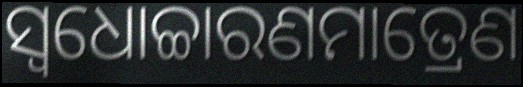
ସ୍ଵଧୋଚ୍ଚାରଣମାତ୍ରେଣ